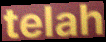
telah